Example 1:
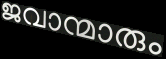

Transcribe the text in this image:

ജവാന്മാരും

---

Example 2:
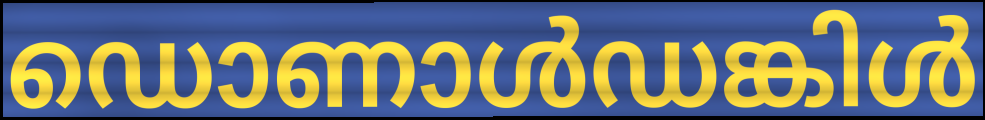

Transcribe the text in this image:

ഡൊണാൾഡങ്കിൾ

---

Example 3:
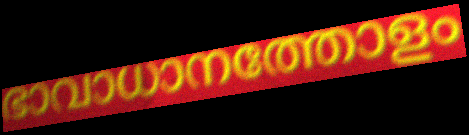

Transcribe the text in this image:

ഭാവാധാനത്തോളം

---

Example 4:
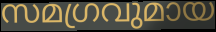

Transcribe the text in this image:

സമഗ്രവുമായ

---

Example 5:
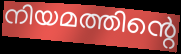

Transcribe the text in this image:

നിയമത്തിന്റെ